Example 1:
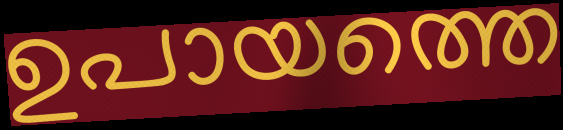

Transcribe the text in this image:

ഉപായത്തെ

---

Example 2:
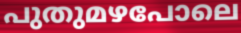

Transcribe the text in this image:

പുതുമഴപോലെ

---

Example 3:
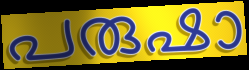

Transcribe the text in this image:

പരുഷാ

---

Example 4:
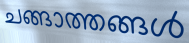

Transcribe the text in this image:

ചങ്ങാത്തങ്ങൾ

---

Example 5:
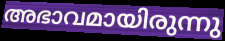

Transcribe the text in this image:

അഭാവമായിരുന്നു